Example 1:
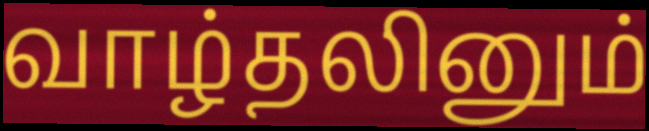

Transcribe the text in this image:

வாழ்தலினும்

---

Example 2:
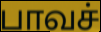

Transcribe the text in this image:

பாவச்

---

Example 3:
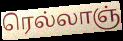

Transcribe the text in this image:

ரெல்லாஞ்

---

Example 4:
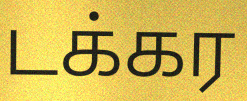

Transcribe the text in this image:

டக்கர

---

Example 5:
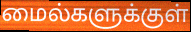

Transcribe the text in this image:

மைல்களுக்குள்